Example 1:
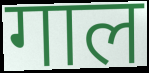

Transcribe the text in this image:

गाल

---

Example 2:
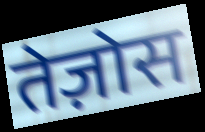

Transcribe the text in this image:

तेज़ोस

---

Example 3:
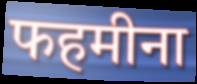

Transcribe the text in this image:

फहमीना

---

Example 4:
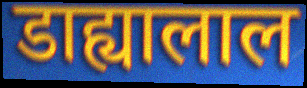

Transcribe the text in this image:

डाह्यालाल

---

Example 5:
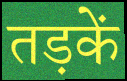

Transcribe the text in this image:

तड़कें